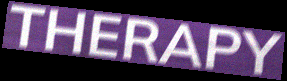
THERAPY